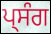
ਪ੍ਸੰਗ